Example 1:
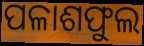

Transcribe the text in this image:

ପଳାଶଫୁଲ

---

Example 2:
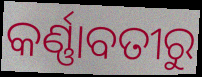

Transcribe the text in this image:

କର୍ଣ୍ଣାବତୀରୁ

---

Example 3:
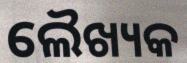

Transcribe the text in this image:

ଲୈଖ୍ୟକ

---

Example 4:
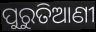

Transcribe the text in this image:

ପୁରୁତିଆଣୀ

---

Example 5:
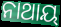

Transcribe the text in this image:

ନାଥାୟ